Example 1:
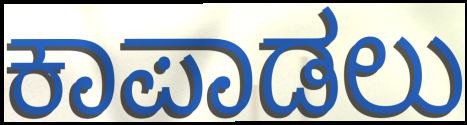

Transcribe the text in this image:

ಕಾಪಾಡಲು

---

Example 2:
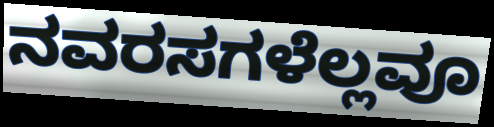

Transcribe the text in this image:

ನವರಸಗಳೆಲ್ಲವೂ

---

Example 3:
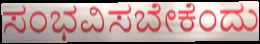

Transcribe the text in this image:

ಸಂಭವಿಸಬೇಕೆಂದು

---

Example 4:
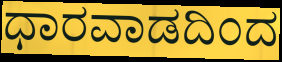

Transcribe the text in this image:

ಧಾರವಾಡದಿಂದ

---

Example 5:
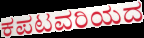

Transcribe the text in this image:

ಕಪಟವರಿಯದ